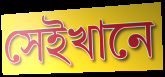
সেইখানে